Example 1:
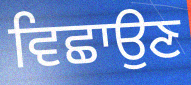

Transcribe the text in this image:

ਵਿਛਾਉਣ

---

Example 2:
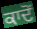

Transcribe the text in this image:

ਕਾਦੋਂ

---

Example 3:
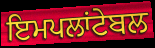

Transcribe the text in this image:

ਇਮਪਲਾਂਟੇਬਲ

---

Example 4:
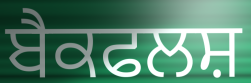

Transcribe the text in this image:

ਬੈਕਫਲਸ਼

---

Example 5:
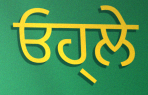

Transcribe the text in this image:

ਓਹ੍ਲੇ